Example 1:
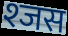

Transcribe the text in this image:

श्जस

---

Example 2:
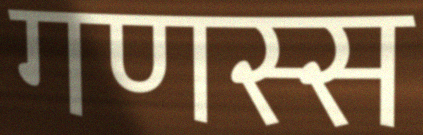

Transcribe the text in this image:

गणस्स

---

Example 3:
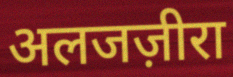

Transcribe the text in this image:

अलजज़ीरा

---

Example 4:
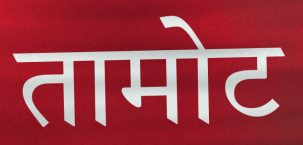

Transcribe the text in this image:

तामोट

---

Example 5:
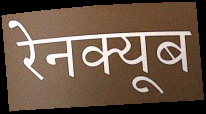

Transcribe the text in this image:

रेनक्यूब